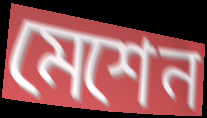
মেশেন